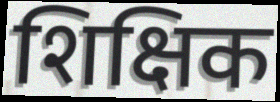
शिक्षिक